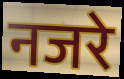
नजरे